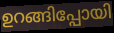
ഉറങ്ങിപ്പോയി